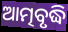
ଆତ୍ମବୃଦ୍ଧି